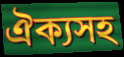
ঐক্যসহ